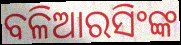
ବଳିଆରସିଂଙ୍କ